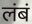
लंबं